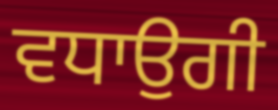
ਵਧਾਉਗੀ